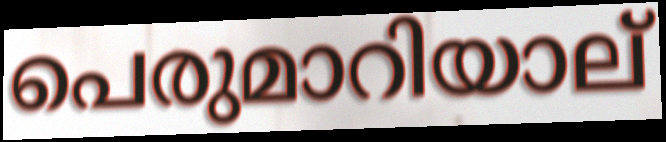
പെരുമാറിയാല്